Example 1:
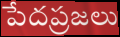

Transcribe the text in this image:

పేదప్రజలు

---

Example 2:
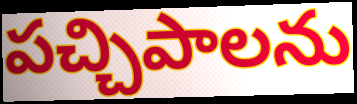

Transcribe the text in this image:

పచ్చిపాలను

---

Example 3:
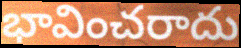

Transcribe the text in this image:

భావించరాదు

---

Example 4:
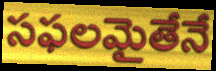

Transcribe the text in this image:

సఫలమైతేనే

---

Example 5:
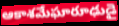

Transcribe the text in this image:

ఆకాశమేఘారూఢుడై